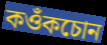
কওঁকচোন